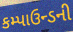
કમ્પાઉન્ડની